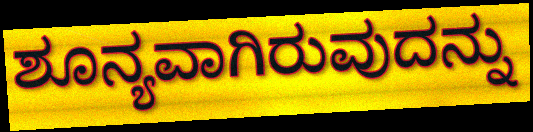
ಶೂನ್ಯವಾಗಿರುವುದನ್ನು